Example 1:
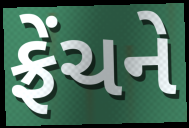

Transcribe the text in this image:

ફ્રેંચને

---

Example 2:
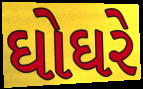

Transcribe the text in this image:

ઘોઘરે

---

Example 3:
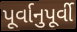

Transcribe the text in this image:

પૂર્વાનુપૂર્વી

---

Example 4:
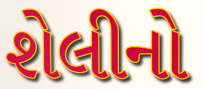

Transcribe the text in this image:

શેલીનો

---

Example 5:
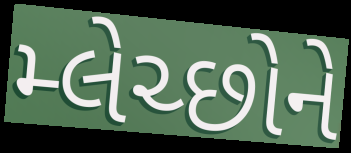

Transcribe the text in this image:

મ્લેચ્છોને